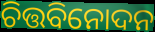
ଚିତ୍ତବିନୋଦନ